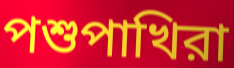
পশুপাখিরা